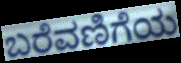
ಬರೆವಣಿಗೆಯ